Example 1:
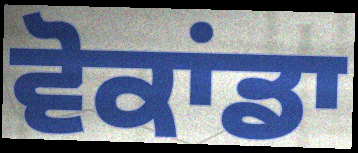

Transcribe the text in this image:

ਵੋਕਾਂਡਾ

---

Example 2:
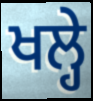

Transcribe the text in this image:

ਖਲ੍ਹੇ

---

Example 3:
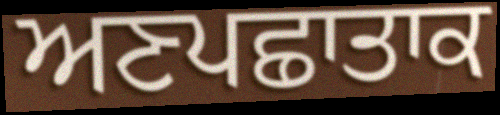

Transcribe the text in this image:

ਅਣਪਛਾਤਾਕ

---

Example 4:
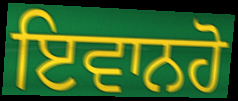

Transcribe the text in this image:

ਇਵਾਨਹੋ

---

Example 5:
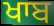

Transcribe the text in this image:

ਖਾਬ